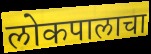
लोकपालाचा